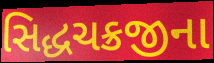
સિદ્ધચક્રજીના